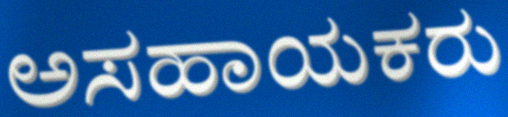
ಅಸಹಾಯಕರು